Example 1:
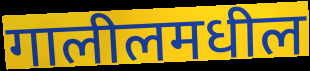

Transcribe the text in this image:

गालीलमधील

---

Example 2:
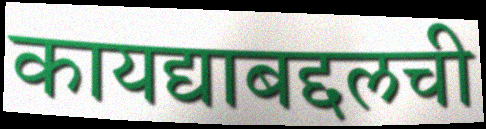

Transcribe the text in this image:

कायद्याबद्दलची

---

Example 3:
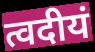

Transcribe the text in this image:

त्वदीयं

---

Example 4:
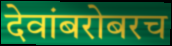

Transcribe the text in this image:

देवांबरोबरच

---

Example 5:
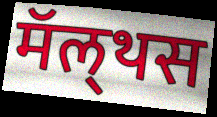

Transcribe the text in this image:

मॅल्थस